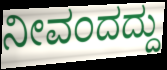
ನೀವಂದದ್ದು